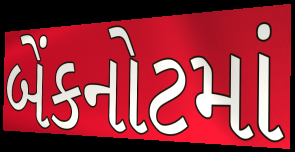
બેંકનોટમાં